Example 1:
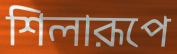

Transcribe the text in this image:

শিলারূপে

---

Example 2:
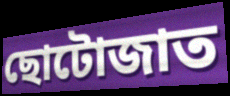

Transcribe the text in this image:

ছোটোজাত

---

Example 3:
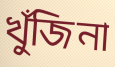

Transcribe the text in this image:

খুঁজিনা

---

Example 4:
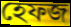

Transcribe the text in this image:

হেফজ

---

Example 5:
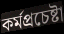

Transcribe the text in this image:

কর্মপ্রচেষ্টা